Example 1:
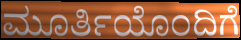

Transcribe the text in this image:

ಮೂರ್ತಿಯೊಂದಿಗೆ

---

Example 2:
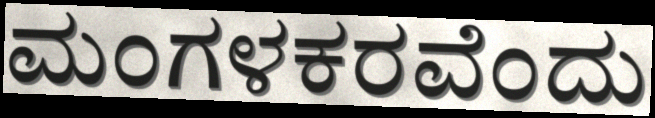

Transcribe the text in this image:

ಮಂಗಳಕರವೆಂದು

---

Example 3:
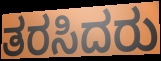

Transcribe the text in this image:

ತರಸಿದರು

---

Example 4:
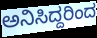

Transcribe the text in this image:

ಅನಿಸಿದ್ದರಿಂದ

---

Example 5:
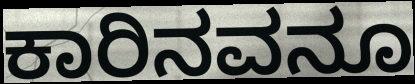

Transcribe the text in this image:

ಕಾರಿನವನೂ